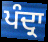
ਪੰਦ੍ਰਾ